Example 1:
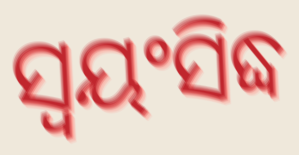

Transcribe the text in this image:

ସ୍ୱୟଂସିଦ୍ଧ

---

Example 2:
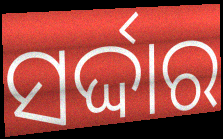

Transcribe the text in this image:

ସର୍ଦ୍ଦାର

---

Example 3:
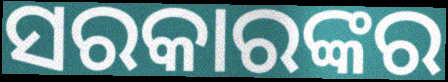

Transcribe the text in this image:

ସରକାରଙ୍କର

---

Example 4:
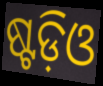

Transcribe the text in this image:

ଷ୍ଟଡ଼ିଓ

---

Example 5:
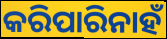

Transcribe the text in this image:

କରିପାରିନାହଁ